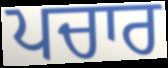
ਪਚਾਰ